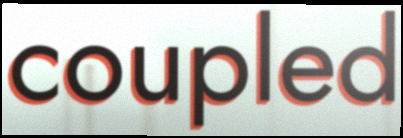
coupled